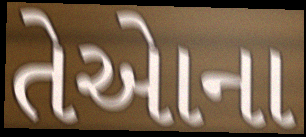
તેએાના